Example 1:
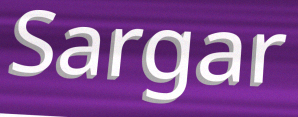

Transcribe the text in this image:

Sargar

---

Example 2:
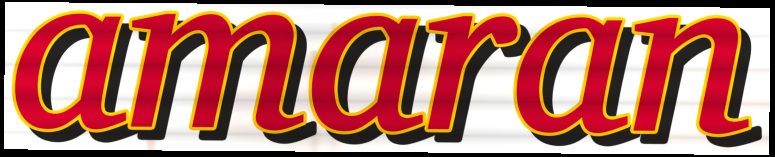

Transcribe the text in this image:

amaran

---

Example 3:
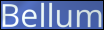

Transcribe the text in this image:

Bellum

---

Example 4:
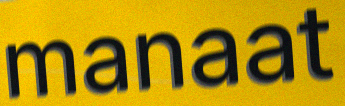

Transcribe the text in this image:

manaat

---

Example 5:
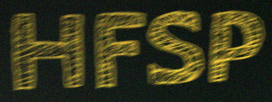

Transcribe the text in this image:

HFSP